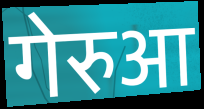
गेरुआ